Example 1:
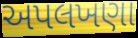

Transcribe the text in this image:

અપલખણા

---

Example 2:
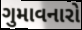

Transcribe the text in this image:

ગુમાવનારો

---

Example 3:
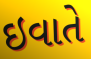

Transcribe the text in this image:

ઇવાતે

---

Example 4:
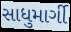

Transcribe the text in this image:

સાધુમાર્ગી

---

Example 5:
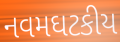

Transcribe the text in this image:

નવમઘટકીય